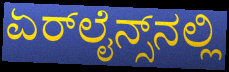
ಏರ್‌ಲೈನ್ಸ್‌ನಲ್ಲಿ